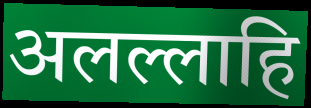
अलल्लाहि